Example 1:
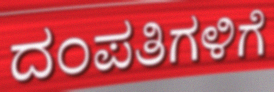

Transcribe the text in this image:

ದಂಪತಿಗಳಿಗೆ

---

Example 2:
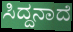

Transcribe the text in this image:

ಸಿದ್ದನಾದೆ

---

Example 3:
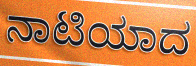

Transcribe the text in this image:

ನಾಟಿಯಾದ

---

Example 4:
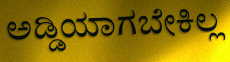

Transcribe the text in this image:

ಅಡ್ಡಿಯಾಗಬೇಕಿಲ್ಲ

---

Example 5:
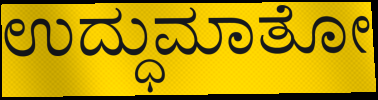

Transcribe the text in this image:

ಉದ್ಧುಮಾತೋ